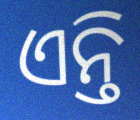
ଏନ୍ତି